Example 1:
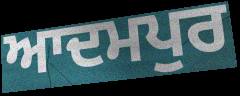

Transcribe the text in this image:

ਆਦਮਪੁਰ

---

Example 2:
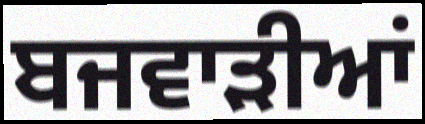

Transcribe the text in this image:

ਬਜਵਾੜੀਆਂ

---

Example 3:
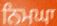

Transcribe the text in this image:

ਨਿਮਘਾ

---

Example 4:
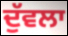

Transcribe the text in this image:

ਦੁੱਵਲਾ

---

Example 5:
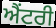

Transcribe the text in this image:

ਐਂਟਰੀ